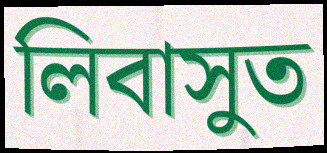
লিবাসুত